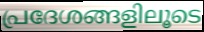
പ്രദേശങ്ങളിലൂടെ